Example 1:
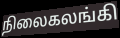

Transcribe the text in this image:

நிலைகலங்கி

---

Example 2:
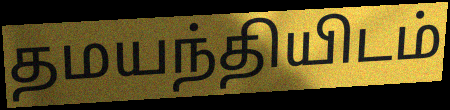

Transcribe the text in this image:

தமயந்தியிடம்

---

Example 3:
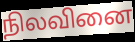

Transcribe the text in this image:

நிலவினை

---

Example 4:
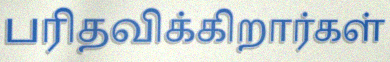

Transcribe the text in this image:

பரிதவிக்கிறார்கள்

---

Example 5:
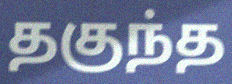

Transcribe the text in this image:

தகுந்த